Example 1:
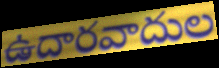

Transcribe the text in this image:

ఉదారవాదుల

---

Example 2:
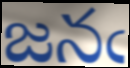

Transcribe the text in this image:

జనఁ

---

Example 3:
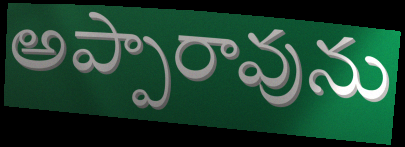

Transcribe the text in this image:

అప్పారావును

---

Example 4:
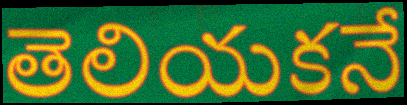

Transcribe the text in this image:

తెలియకనే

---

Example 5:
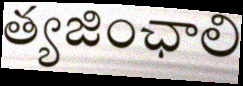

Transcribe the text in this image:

త్యజింఛాలి